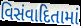
વિસંવાદિતામાં